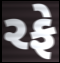
રફે